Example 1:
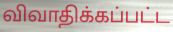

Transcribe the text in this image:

விவாதிக்கப்பட்ட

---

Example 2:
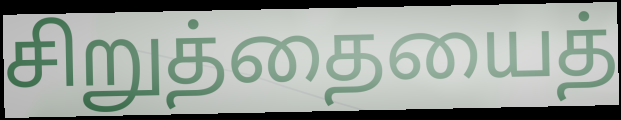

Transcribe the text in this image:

சிறுத்தையைத்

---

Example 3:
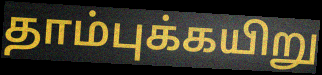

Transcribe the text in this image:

தாம்புக்கயிறு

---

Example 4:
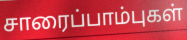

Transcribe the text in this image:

சாரைப்பாம்புகள்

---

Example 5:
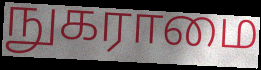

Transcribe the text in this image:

நுகராமை